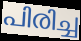
പിരിച്ച